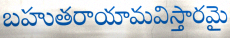
బహుతరాయామవిస్తారమై